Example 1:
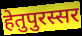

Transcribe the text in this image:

हेतुपुरस्सर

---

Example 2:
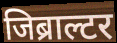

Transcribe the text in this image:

जिब्राल्टर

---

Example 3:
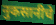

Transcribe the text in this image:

नुकसानीचे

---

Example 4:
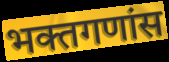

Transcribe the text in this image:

भक्तगणांस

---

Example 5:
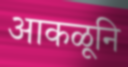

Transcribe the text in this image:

आकळूनि